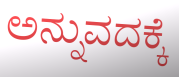
ಅನ್ನುವದಕ್ಕೆ